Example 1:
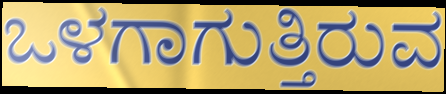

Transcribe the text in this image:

ಒಳಗಾಗುತ್ತಿರುವ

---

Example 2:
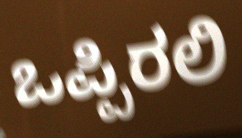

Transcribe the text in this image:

ಒಪ್ಪಿರಲಿ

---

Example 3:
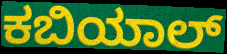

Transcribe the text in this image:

ಕಬಿಯಾಲ್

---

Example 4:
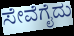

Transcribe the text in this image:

ಸೇವೆಗೈದು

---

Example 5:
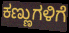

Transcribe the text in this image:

ಕಣ್ಣುಗಳಿಗೆ